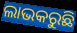
ଲାଭକରୁଛି